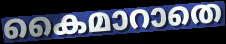
കൈമാറാതെ